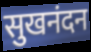
सुखनंदन